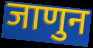
जाणुन